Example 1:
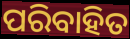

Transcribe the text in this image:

ପରିବାହିତ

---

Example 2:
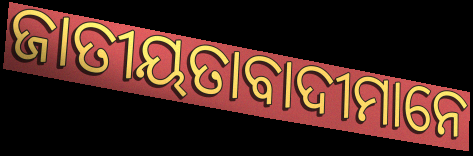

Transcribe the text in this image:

ଜାତୀୟତାବାଦୀମାନେ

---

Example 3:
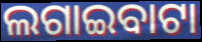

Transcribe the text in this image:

ଲଗାଇବାଟା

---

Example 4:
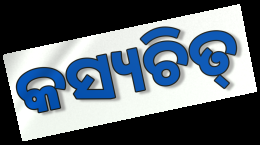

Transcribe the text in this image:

କସ୍ୟଚିତ୍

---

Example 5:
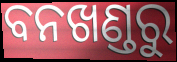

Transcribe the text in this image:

ବନଖଣ୍ଡରୁ